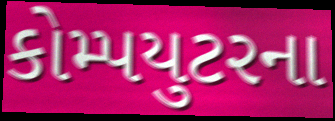
કોમ્પયુટરના